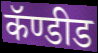
कॅण्डीड